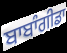
ਬਾਬਾੰਗੀਡਾ